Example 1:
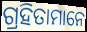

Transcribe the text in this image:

ଗ୍ରହିତାମାନେ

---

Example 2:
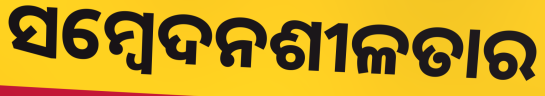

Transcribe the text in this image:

ସମ୍ୱେଦନଶୀଳତାର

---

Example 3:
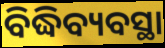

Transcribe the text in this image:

ବିଦ୍ଧିବ୍ୟବସ୍ଥା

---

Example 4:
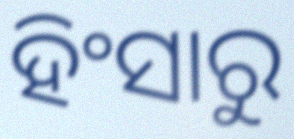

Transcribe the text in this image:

ହିଂସାରୁ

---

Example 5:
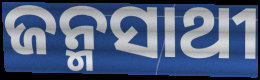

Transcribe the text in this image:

ଜନ୍ମସାଥୀ